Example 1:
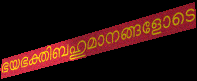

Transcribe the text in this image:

ഭയഭക്തിബഹുമാനങ്ങളോടെ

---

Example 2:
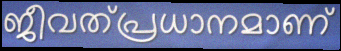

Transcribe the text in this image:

ജീവത്പ്രധാനമാണ്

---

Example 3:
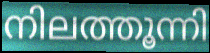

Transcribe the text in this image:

നിലത്തൂന്നി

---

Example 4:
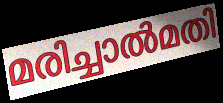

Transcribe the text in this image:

മരിച്ചാൽമതി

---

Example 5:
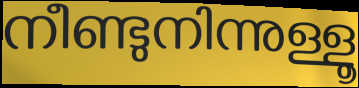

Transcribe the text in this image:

നീണ്ടുനിന്നുള്ളൂ